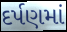
દર્પણમાં